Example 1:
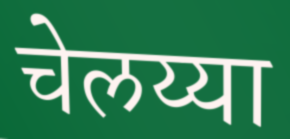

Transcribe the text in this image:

चेलय्या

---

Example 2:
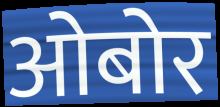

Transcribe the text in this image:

ओबोर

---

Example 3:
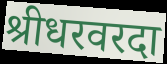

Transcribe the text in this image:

श्रीधरवरदा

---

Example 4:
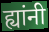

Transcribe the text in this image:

ह्यांनी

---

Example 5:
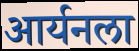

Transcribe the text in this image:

आर्यनला